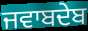
ਜਵਾਬਦੇਬ